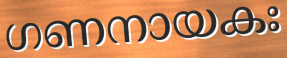
ഗണനായകഃ